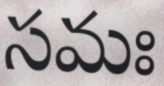
సమః